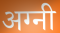
अग्नी